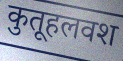
कुतूहलवश